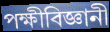
পক্ষীবিজ্ঞানী